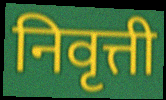
निवृत्ती